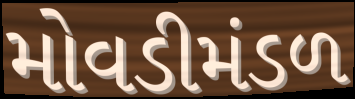
મોવડીમંડળ